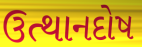
ઉત્થાનદોષ